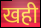
खही